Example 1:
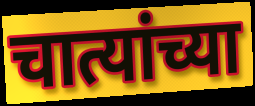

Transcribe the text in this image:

चात्यांच्या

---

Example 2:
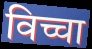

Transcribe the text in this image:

विच्चा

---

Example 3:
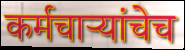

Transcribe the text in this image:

कर्मचाऱ्यांचेच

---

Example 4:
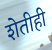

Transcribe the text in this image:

शेतीही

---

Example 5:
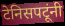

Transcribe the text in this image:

टेनिसपटूंनी